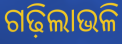
ଗଢ଼ିଲାଭଳି